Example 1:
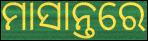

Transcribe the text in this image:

ମାସାନ୍ତରେ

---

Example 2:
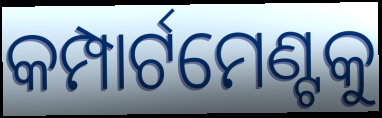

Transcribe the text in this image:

କମ୍ପାର୍ଟମେଣ୍ଟକୁ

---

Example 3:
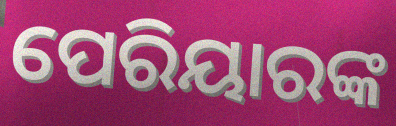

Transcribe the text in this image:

ପେରିୟାରଙ୍କ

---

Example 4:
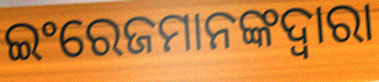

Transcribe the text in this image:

ଇଂରେଜମାନଙ୍କଦ୍ୱାରା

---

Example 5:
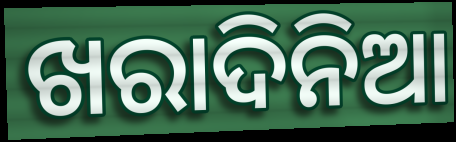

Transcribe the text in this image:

ଖରାଦିନିଆ